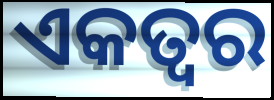
ଏକତ୍ବର